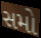
સમો